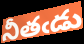
నీతఁడు